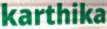
karthika